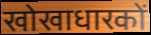
खोखाधारकों